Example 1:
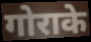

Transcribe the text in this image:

गोराके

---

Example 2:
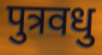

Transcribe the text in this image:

पुत्रवधु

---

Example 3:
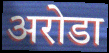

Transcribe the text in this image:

अरोडा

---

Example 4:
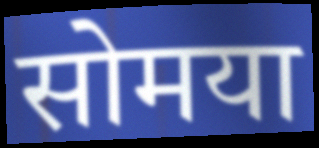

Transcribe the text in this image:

सोमया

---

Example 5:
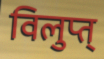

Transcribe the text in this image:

विलुप्त्